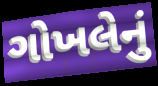
ગોખલેનું